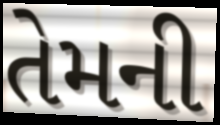
તેમની